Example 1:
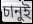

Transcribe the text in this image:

চানুই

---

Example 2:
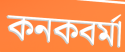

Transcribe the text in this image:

কনকবর্মা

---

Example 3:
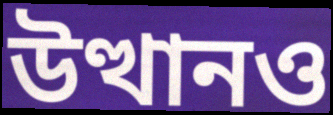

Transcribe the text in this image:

উত্থানও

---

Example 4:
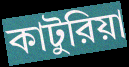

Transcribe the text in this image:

কাটুরিয়া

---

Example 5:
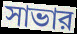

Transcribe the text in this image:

সাভার